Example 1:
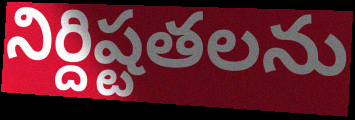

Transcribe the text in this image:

నిర్దిష్టతలను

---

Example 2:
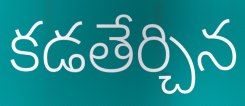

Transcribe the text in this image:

కడతేర్చిన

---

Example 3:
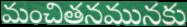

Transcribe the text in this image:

మంచితనమునకు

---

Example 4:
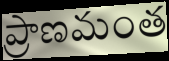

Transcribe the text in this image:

ప్రాణమంత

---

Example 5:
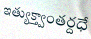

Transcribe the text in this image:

ఇత్యుక్త్వాంతర్దధే